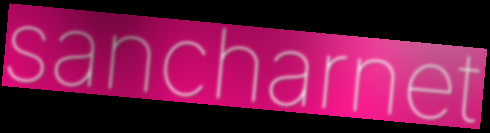
sancharnet